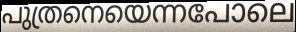
പുത്രനെയെന്നപോലെ